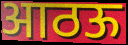
आठऊ